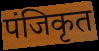
पंजिकृत